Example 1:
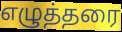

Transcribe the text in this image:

எழுத்தரை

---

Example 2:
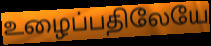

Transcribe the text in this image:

உழைப்பதிலேயே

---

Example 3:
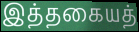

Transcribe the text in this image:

இத்தகையத்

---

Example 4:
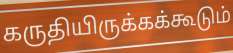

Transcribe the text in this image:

கருதியிருக்கக்கூடும்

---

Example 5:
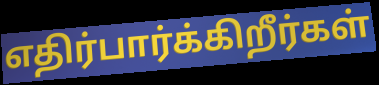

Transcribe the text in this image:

எதிர்பார்க்கிறீர்கள்